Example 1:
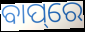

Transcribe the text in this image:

ବାପ୍‌ରେ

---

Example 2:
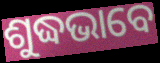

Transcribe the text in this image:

ଶୁଦ୍ଧଭାବେ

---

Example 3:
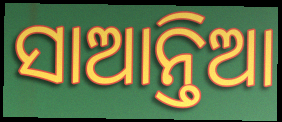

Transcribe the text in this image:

ସାଆନ୍ତିଆ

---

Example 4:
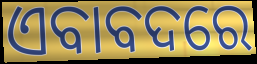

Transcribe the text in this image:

ଏବାବଦରେ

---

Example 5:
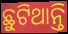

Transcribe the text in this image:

ଛୁଟିଥାନ୍ତି